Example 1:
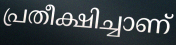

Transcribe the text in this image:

പ്രതീക്ഷിച്ചാണ്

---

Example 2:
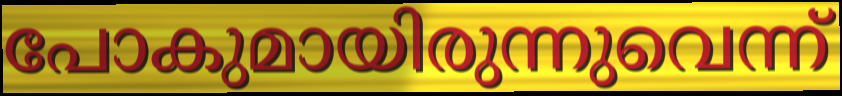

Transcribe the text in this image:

പോകുമായിരുന്നുവെന്ന്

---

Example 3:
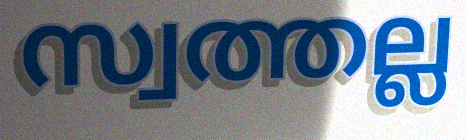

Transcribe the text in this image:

സ്വത്തല്ല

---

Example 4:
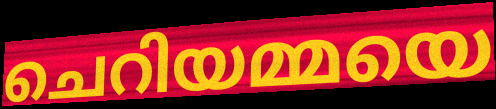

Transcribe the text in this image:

ചെറിയമ്മയെ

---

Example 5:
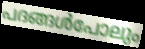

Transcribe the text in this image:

പദങ്ങൾപോലും